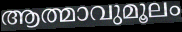
ആത്മാവുമൂലം